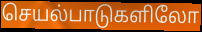
செயல்பாடுகளிலோ